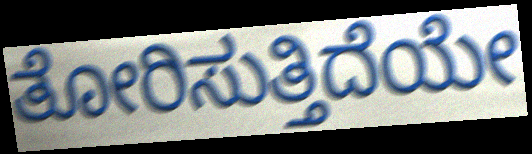
ತೋರಿಸುತ್ತಿದೆಯೇ